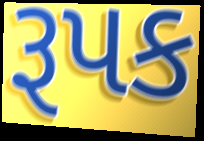
રૂપક